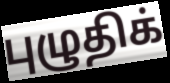
புழுதிக்